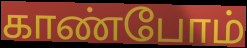
காண்போம்